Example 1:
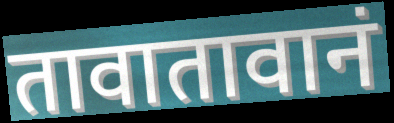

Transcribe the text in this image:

तावातावानं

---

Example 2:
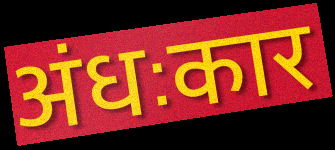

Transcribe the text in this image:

अंधःकार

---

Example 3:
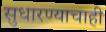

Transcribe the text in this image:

सुधारण्याचाही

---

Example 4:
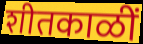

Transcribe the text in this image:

शीतकाळीं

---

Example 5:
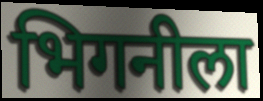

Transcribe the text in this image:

भिगनीला